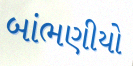
બાંભણીયો